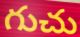
గుచు